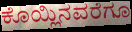
ಕೊಯ್ಲಿನವರೆಗೂ